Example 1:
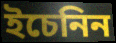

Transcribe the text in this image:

ইচেনিন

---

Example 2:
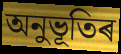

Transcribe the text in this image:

অনুভূতিৰ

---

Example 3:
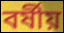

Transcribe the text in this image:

বৰ্ষীয়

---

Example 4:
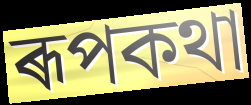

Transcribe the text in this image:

ৰূপকথা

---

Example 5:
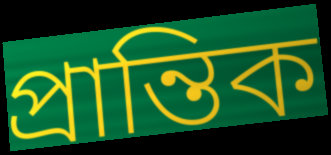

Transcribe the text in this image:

প্ৰান্তিক